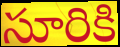
సూరికి